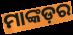
ମାଙ୍କଡ଼ର